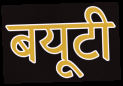
बयूटी